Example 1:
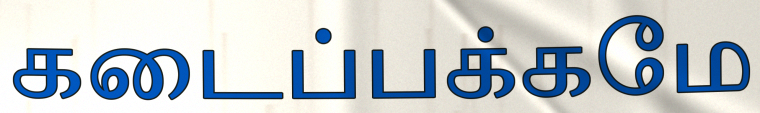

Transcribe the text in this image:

கடைப்பக்கமே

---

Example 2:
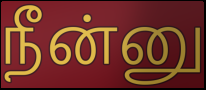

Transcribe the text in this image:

நீன்னு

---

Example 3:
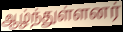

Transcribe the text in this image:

ஆழ்ந்துள்ளனர்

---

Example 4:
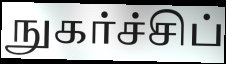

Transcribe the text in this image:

நுகர்ச்சிப்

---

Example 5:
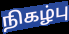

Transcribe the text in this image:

நிகழ்பு